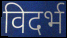
विदर्भ